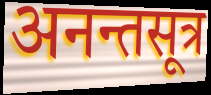
अनन्तसूत्र